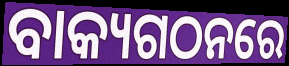
ବାକ୍ୟଗଠନରେ